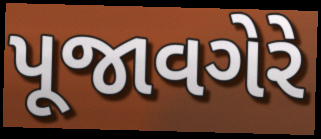
પૂજાવગેરે